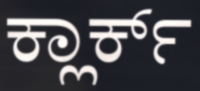
ಕ್ಲಾರ್ಕ್